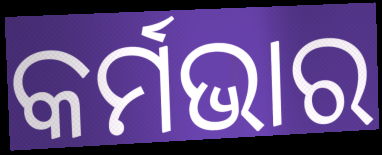
କର୍ମଭାର